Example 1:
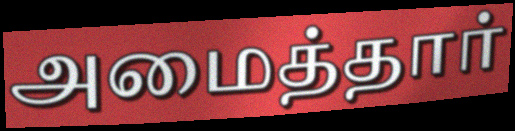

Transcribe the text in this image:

அமைத்தார்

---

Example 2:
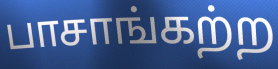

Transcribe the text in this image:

பாசாங்கற்ற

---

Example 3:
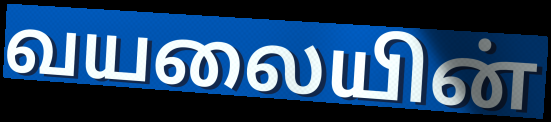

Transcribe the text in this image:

வயலையின்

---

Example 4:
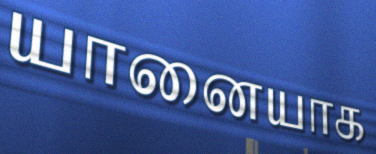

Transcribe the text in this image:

யானையாக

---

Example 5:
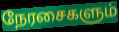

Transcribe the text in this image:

நேரசைகளும்